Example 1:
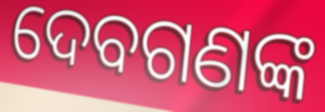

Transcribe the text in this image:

ଦେବଗଣଙ୍କ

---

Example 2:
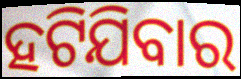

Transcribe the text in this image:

ହଟିଯିବାର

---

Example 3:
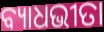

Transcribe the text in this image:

ବ୍ୟାଧଭୀତା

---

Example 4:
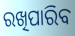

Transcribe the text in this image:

ରଖିପାରିବ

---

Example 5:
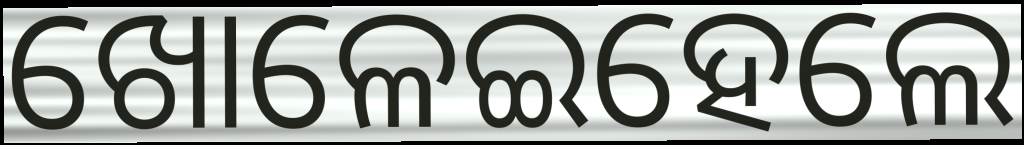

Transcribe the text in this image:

ଖୋଳେଇହେଲେ